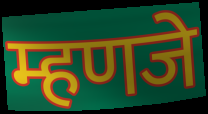
म्हणजे